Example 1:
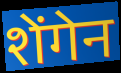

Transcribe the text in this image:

शेंगेन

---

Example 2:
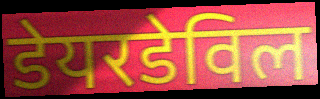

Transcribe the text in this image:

डेयरडेविल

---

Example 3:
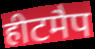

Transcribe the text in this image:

हीटमैप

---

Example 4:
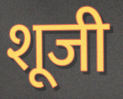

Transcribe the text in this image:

शूजी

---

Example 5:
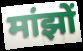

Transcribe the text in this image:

मांझों